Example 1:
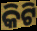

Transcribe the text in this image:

କିଟି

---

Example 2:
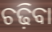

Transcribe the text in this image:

ଚଢ଼ିବା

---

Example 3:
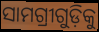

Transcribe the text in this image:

ସାମଗ୍ରୀଗୁଡ଼ିକୁ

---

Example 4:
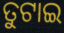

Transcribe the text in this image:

ତୁଟାଇ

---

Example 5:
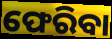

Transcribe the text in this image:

ଫେରିବା